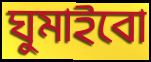
ঘুমাইবো